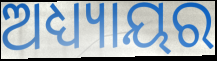
ଅଧ୍ୟ୍ୟାୟର